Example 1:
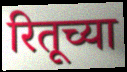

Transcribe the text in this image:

रितूच्या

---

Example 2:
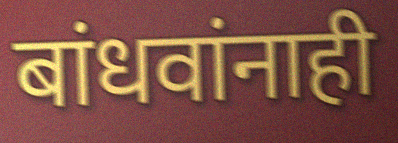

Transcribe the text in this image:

बांधवांनाही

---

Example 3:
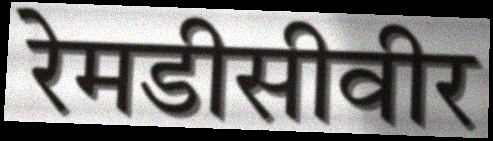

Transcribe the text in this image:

रेमडीसीवीर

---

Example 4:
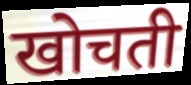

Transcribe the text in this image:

खोचती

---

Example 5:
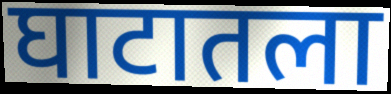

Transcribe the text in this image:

घाटातला